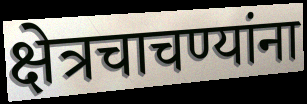
क्षेत्रचाचण्यांना